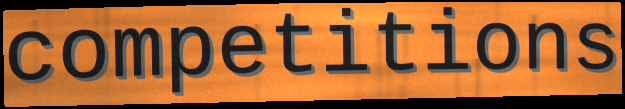
competitions